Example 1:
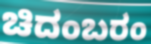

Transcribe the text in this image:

ಚಿದಂಬರಂ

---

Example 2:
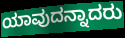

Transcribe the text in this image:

ಯಾವುದನ್ನಾದರು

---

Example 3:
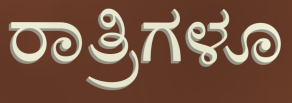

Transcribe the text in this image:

ರಾತ್ರಿಗಳೂ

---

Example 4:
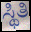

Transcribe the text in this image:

ಸ್ಥಿತಿ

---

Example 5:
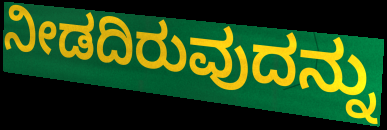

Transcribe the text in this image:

ನೀಡದಿರುವುದನ್ನು